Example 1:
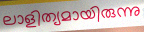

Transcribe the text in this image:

ലാളിത്യമായിരുന്നു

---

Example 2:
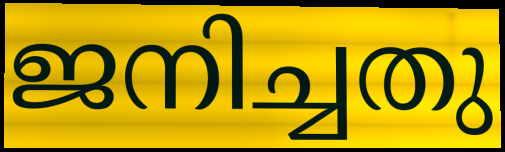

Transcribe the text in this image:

ജനിച്ചതു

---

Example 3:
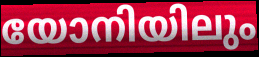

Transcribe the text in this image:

യോനിയിലും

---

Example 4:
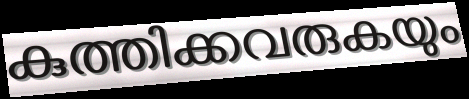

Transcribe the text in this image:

കുത്തിക്കവരുകയും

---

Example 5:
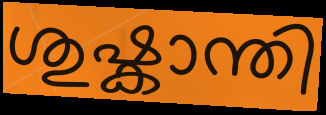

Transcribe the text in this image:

ശുഷ്കാന്തി